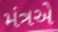
મંત્રએ